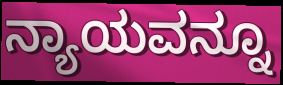
ನ್ಯಾಯವನ್ನೂ